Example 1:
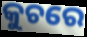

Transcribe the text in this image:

କୁଚରେ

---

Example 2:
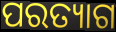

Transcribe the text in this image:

ପରତ୍ୟାଗ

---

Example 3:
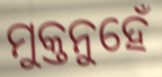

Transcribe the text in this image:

ମୁକ୍ତନୁହେଁ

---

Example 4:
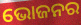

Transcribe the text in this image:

ଭୋଜନର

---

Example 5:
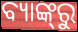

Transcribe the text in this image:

ବ୍ୟାଙ୍କ୍‌ରୁ